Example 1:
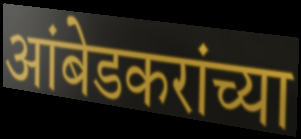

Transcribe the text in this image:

आंबेडकरांच्या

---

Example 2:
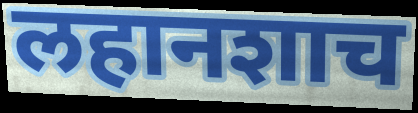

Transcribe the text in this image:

लहानशाच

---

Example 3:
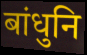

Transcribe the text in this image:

बांधुनि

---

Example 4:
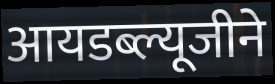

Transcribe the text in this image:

आयडब्ल्यूजीने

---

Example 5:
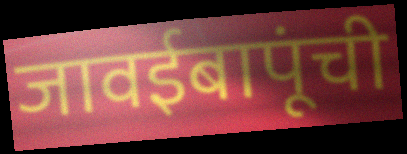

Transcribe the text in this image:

जावईबापूंची